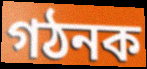
গঠনক